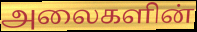
அலைகளின்